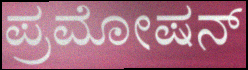
ಪ್ರಮೋಷನ್